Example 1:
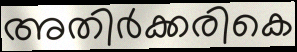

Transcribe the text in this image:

അതിർക്കരികെ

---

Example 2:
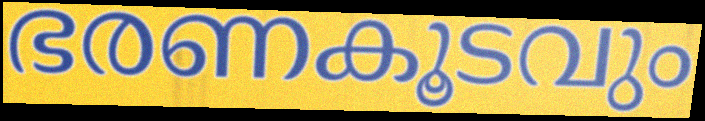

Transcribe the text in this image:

ഭരണകൂടവും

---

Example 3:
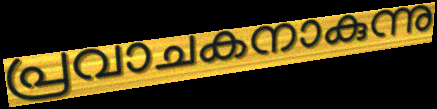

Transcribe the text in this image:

പ്രവാചകനാകുന്നു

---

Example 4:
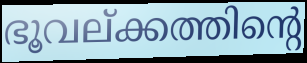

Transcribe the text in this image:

ഭൂവല്ക്കത്തിന്റെ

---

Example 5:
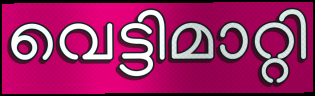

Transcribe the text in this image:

വെട്ടിമാറ്റി